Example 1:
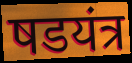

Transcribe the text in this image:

षडयंत्र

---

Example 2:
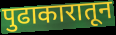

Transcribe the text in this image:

पुढाकारातून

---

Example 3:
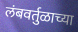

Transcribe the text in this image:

लंबवर्तुळाच्या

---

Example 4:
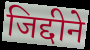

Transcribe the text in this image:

जिद्दीने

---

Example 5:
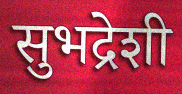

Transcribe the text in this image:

सुभद्रेशी